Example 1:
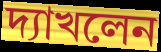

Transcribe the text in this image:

দ্যাখলেন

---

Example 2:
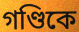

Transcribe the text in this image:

গণ্ডিকে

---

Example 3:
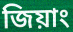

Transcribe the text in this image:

জিয়াং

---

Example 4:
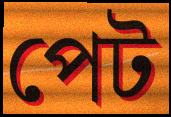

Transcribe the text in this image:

পেট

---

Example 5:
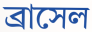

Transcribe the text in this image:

ব্রাসেল